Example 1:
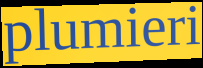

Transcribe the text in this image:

plumieri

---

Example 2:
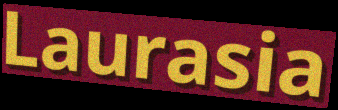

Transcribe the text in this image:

Laurasia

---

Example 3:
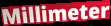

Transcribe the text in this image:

Millimeter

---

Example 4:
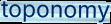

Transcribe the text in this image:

toponomy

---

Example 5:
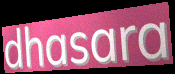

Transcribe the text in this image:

dhasara